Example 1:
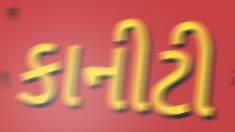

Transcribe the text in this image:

કાનીટી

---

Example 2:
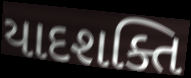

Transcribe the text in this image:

યાદશક્તિ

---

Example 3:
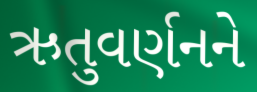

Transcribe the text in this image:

ઋતુવર્ણનને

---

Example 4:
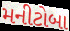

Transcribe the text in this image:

મનીટોબા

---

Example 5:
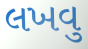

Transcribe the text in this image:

લખવુ